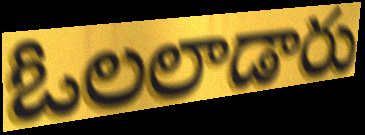
ఓలలాడారు